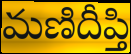
మణిదీప్తి